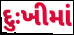
દુઃખીમાં